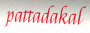
pattadakal